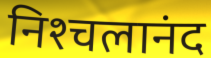
निश्चलानंद